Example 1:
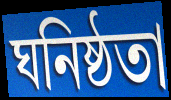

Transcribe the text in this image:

ঘনিষ্ঠতা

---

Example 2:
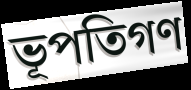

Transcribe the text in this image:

ভূপতিগণ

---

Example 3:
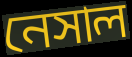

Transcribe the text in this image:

নেসাল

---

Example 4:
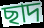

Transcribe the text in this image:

ছাদ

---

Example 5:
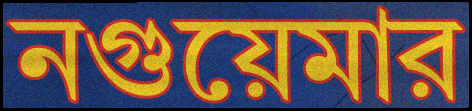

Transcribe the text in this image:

নগুয়েমার